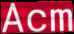
Acm